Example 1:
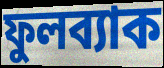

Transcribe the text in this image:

ফুলব্যাক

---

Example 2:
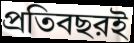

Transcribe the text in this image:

প্রতিবছরই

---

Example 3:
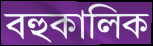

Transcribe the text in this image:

বহুকালিক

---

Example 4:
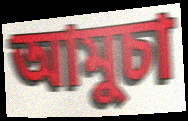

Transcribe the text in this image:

আমুচা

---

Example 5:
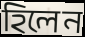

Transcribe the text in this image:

হিলেন